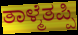
ತಾಳ್ಮೆತಪ್ಪಿ